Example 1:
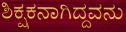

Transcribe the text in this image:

ಶಿಕ್ಷಕನಾಗಿದ್ದವನು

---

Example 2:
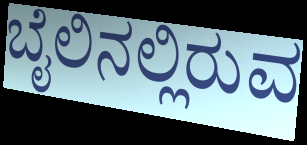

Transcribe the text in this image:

ಬೈಲಿನಲ್ಲಿರುವ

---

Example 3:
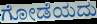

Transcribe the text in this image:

ಗೋಡೆಯದು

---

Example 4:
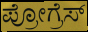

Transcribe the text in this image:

ಪ್ರೋಗ್ರೆಸ್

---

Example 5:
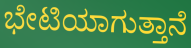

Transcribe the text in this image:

ಭೇಟಿಯಾಗುತ್ತಾನೆ